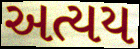
અત્યય